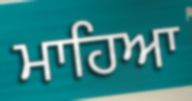
ਮਾਹਿਆ